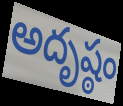
అదృష్ఠం